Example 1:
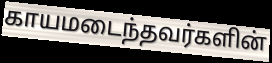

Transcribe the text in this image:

காயமடைந்தவர்களின்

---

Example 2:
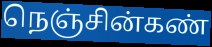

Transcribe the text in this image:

நெஞ்சின்கண்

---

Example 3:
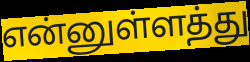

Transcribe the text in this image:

என்னுள்ளத்து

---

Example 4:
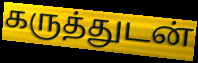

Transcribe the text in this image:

கருத்துடன்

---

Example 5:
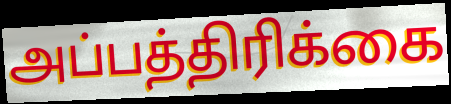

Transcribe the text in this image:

அப்பத்திரிக்கை